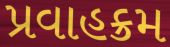
પ્રવાહક્રમ